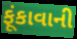
ફૂંકાવાની